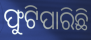
ଫୁଟିପାରିଛି